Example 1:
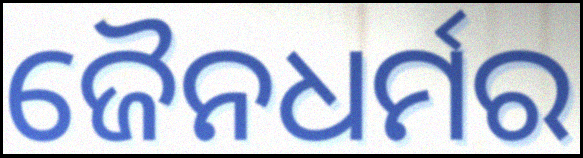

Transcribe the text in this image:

ଜୈନଧର୍ମର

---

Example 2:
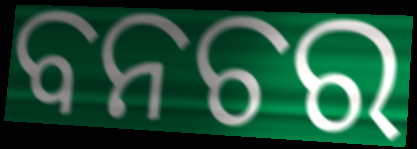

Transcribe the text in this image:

ବନଚର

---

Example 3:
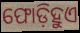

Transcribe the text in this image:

ଫୋଡ଼ିହୁଏ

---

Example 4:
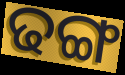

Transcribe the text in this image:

ଢଙ୍ଗ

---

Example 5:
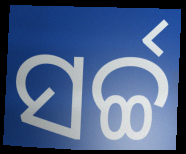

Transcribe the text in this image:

ସର୍ଚ୍ଚ